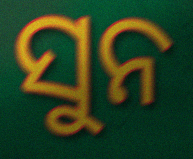
ସୁନ